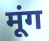
मूंग